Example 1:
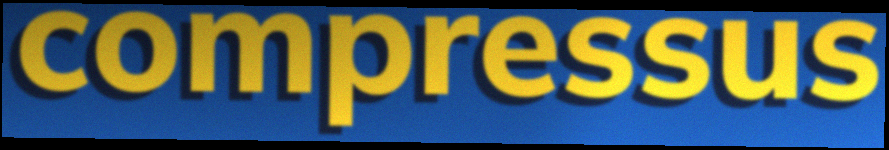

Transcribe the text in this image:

compressus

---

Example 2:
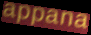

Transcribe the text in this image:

appana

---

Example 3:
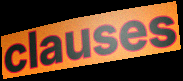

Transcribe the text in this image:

clauses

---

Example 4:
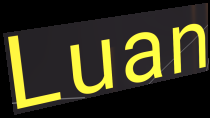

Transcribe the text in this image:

Luan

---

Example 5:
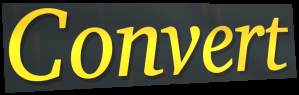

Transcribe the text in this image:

Convert